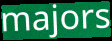
majors